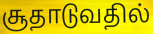
சூதாடுவதில்